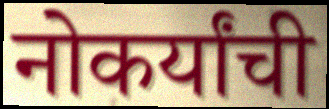
नोकर्यांची